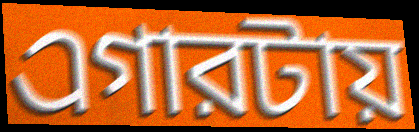
এগারটায়